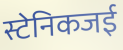
स्टेनिकजई